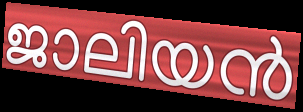
ജാലിയൻ